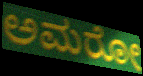
ಅಮರೋ